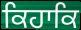
ਕਿਹਾਕਿ